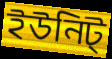
ইউনিট্